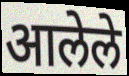
आलेले